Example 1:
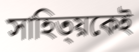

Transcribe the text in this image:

সাহিত্য়কেই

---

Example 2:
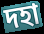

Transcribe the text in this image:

দহা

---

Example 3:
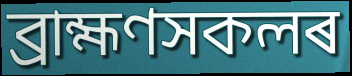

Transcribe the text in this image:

ব্ৰাহ্মণসকলৰ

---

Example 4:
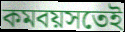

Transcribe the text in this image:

কমবয়সতেই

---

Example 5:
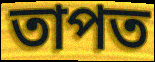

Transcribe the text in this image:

তাপত